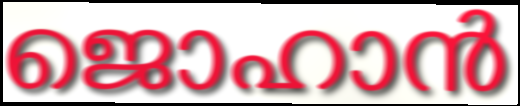
ജൊഹാൻ